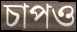
চাপও